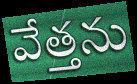
వేత్తను